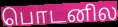
பொடனில